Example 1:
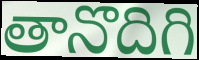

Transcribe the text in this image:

తానొదిగి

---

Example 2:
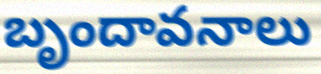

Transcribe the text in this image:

బృందావనాలు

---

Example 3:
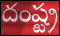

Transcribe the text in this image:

దంష్ట్ర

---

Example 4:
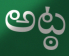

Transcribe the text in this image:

అట్ఠ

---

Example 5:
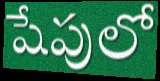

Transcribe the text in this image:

షేపులో